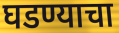
घडण्याचा